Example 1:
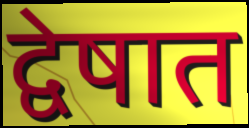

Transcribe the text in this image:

द्वेषात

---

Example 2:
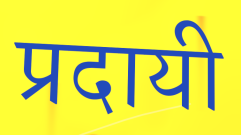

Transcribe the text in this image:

प्रदायी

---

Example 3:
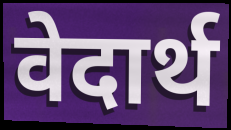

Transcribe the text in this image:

वेदार्थ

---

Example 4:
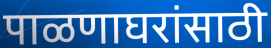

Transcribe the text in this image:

पाळणाघरांसाठी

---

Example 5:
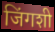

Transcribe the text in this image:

जिंगशी